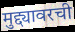
मुद्द्यावरची